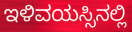
ಇಳಿವಯಸ್ಸಿನಲ್ಲಿ